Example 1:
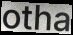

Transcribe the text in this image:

otha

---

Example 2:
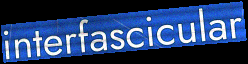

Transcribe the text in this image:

interfascicular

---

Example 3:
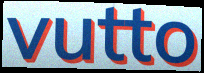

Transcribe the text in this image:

vutto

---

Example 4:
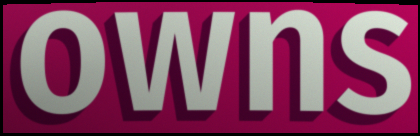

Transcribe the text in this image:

owns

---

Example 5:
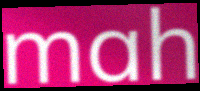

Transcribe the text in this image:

mah